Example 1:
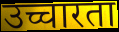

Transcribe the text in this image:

उच्चारता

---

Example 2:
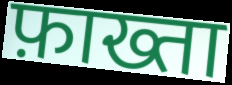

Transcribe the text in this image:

फ़ाख्ता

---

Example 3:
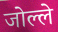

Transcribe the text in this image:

जोल्ले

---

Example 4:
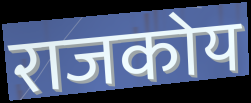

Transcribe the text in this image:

राजकोय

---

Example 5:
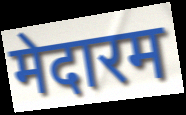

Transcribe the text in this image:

मेदारम